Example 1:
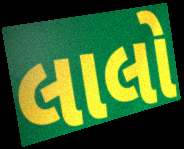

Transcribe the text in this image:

લાલો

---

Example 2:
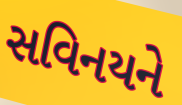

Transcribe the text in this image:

સવિનયને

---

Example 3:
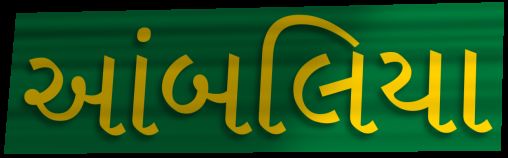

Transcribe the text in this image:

આંબલિયા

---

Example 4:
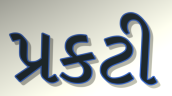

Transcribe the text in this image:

પ્રકટી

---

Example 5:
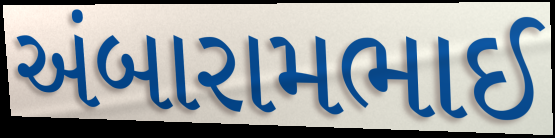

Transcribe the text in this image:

અંબારામભાઈ